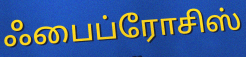
ஃபைப்ரோசிஸ்